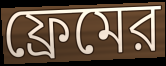
ফ্রেমের